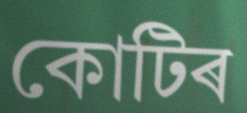
কোটিৰ